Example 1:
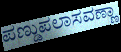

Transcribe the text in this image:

ಪಣ್ಡುಪಲಾಸವಣ್ಣಾ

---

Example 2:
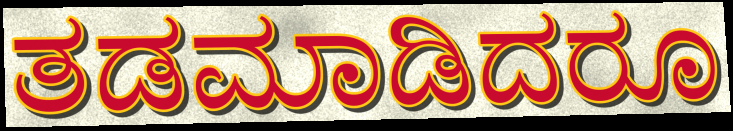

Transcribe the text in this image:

ತಡಮಾಡಿದರೂ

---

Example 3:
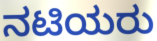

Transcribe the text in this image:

ನಟಿಯರು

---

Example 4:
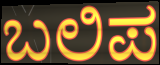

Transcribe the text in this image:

ಬಲಿಪ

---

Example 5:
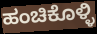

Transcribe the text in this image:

ಹಂಚಿಕೊಳ್ಳಿ